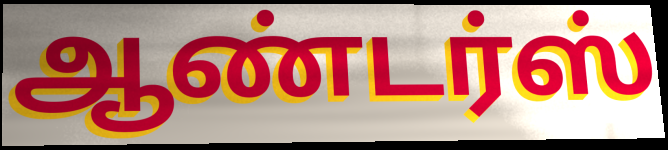
ஆண்டர்ஸ்